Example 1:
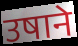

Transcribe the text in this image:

उषाने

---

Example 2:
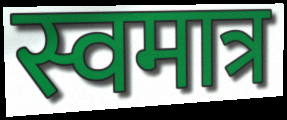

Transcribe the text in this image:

स्वमात्र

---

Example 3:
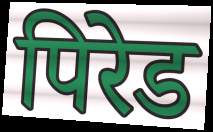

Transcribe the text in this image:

पिरेड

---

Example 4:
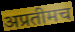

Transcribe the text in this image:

अप्रतीमच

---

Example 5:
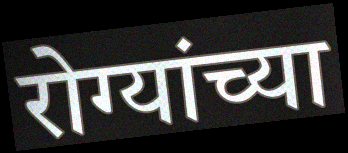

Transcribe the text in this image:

रोग्यांच्या